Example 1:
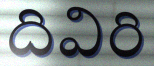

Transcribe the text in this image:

దివిరి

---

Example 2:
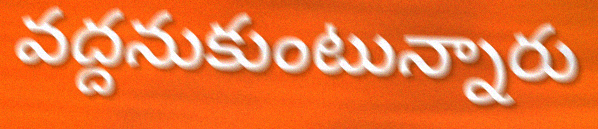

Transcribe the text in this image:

వద్దనుకుంటున్నారు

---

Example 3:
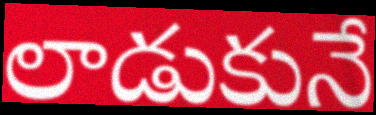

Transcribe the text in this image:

లాడుకునే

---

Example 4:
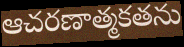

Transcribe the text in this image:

ఆచరణాత్మకతను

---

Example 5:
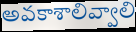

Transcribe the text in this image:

అవకాశాలివ్వాలి